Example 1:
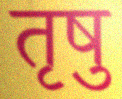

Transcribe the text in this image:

तृषु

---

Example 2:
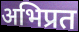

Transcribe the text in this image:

अभिप्रत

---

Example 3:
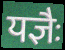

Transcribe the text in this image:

यज्ञैः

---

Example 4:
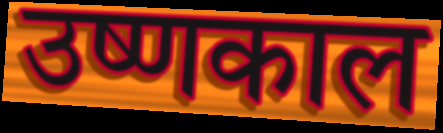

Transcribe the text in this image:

उष्णकाल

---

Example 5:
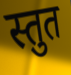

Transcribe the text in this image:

स्तुत